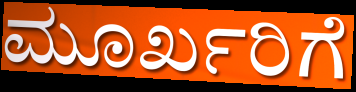
ಮೂರ್ಖರಿಗೆ